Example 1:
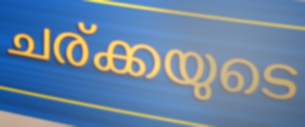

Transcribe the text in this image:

ചര്ക്കയുടെ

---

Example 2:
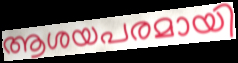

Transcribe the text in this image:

ആശയപരമായി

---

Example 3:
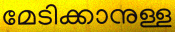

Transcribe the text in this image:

മേടിക്കാനുള്ള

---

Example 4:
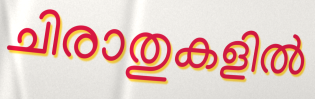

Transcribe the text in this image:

ചിരാതുകളിൽ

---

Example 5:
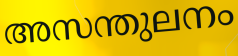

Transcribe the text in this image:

അസന്തുലനം